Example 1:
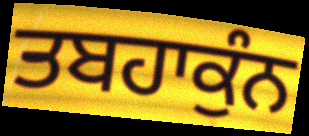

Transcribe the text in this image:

ਤਬਹਾਕੁੰਨ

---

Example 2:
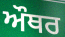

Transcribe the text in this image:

ਔਥਰ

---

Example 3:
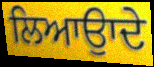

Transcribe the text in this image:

ਲਿਆਉਾਦੇ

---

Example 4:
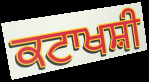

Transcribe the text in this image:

ਕਟਾਖਸ਼ੀ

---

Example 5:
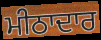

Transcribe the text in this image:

ਮੀਠਾਦਾਰ